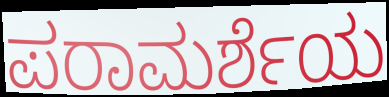
ಪರಾಮರ್ಶೆಯ